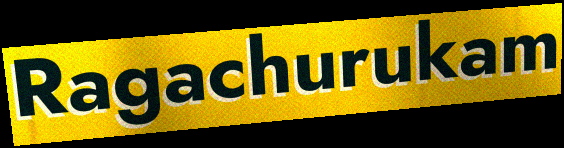
Ragachurukam